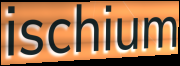
ischium